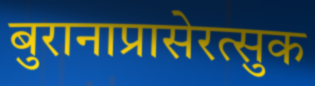
बुरानाप्रासेरत्सुक